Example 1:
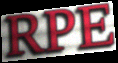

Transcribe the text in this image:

RPE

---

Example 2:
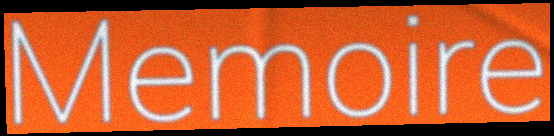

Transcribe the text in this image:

Memoire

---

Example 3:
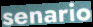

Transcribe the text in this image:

senario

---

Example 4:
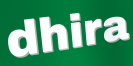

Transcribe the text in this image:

dhira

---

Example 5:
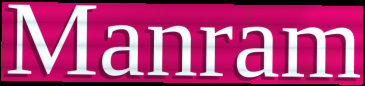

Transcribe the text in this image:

Manram